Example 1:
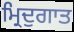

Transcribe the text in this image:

ਮ੍ਰਿਦੁਗਾਤ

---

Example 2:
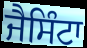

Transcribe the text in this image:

ਜੈਸਿੰਟਾ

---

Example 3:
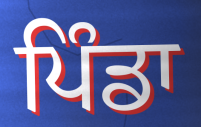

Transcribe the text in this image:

ਪਿੰਡਾ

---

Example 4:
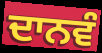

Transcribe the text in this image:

ਦਾਨਵੰ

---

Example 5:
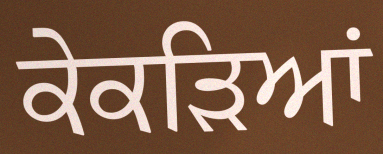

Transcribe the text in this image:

ਕੇਕੜਿਆਂ